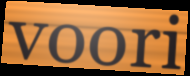
voori